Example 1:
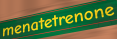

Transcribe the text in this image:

menatetrenone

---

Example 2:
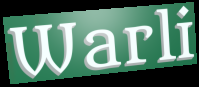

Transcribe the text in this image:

Warli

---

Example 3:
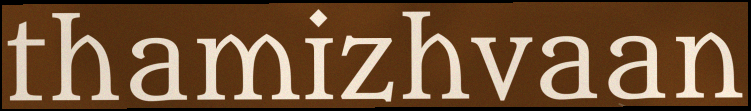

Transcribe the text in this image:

thamizhvaan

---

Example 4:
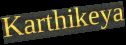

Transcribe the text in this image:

Karthikeya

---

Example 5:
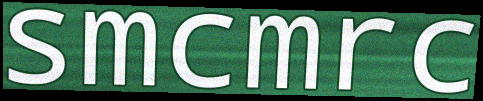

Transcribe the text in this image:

smcmrc